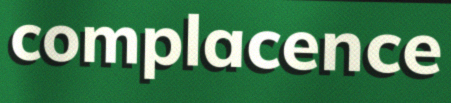
complacence